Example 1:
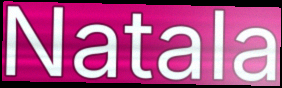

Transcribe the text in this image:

Natala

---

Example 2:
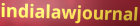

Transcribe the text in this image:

indialawjournal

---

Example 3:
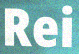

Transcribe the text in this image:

Rei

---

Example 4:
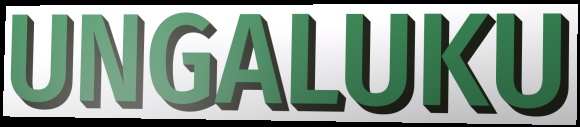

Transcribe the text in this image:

UNGALUKU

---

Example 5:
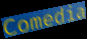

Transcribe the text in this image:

Comedia